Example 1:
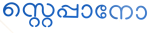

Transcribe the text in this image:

സ്റ്റെപ്പാനോ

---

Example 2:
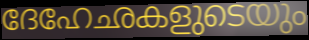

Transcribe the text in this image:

ദേഹേഛകളുടെയും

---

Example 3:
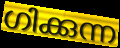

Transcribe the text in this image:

ഗിക്കുന്ന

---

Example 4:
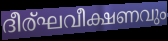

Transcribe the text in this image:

ദീര്ഘവീക്ഷണവും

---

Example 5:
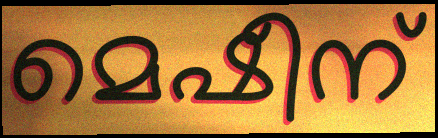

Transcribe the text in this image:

മെഷീന്